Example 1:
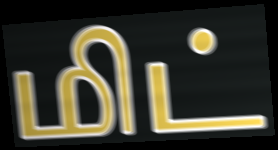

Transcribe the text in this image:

மிட்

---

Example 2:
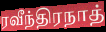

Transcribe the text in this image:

ரவீந்திரநாத்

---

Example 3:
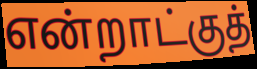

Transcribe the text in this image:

என்றாட்குத்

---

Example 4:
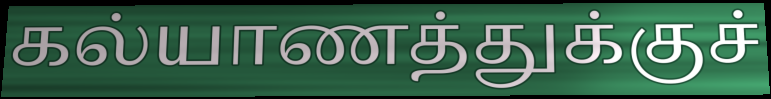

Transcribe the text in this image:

கல்யாணத்துக்குச்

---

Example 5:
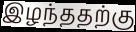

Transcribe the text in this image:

இழந்ததற்கு